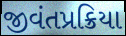
જીવંતપ્રક્રિયા